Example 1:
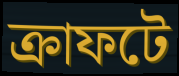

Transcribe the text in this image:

ক্রাফটে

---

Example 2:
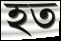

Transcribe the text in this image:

হত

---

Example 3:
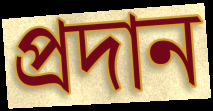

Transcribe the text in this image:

প্রদান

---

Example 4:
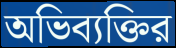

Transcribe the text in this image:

অভিব্যক্তির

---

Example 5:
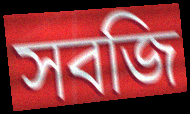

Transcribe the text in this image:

সবজি